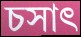
চসাৎ